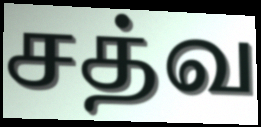
சத்வ